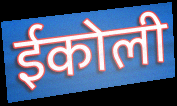
ईकोली